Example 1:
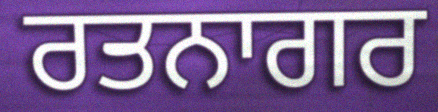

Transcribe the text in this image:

ਰਤਨਾਗਰ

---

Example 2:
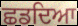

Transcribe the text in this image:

ਛਡਦਿਆ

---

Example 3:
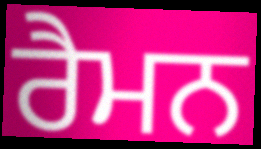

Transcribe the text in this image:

ਰੈਮਨ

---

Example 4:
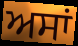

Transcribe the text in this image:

ਅਸਾਂ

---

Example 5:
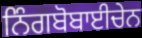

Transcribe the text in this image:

ਨਿੰਗਬੋਬਾਈਚੇਨ